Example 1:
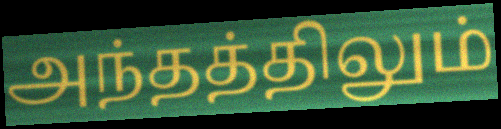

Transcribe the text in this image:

அந்தத்திலும்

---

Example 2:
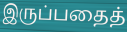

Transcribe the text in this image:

இருப்பதைத்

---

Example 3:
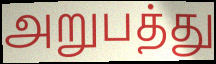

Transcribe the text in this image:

அறுபத்து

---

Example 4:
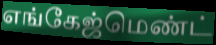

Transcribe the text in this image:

எங்கேஜ்மெண்ட்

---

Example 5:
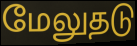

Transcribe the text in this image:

மேலுதடு